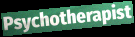
Psychotherapist